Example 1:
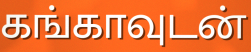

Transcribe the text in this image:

கங்காவுடன்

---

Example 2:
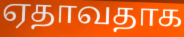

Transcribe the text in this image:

ஏதாவதாக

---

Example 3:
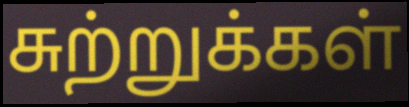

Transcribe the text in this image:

சுற்றுக்கள்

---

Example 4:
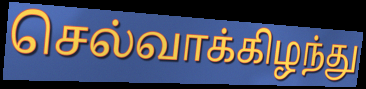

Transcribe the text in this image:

செல்வாக்கிழந்து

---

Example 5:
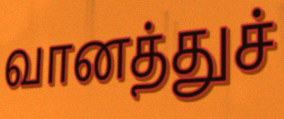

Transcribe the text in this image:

வானத்துச்